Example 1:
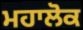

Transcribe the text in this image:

ਮਹਾਲੋਕ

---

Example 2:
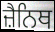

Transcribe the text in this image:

ਜ਼ੈਨਿਥ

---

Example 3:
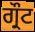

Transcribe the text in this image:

ਗ੍ਰੌਟ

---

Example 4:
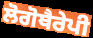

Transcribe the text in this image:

ਲੋਗੋਥੈਰੇਪੀ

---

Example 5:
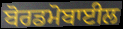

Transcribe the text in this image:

ਬੋਰਡਮੋਬਾਈਲ